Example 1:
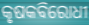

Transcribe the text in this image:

କୃଷକବିରୋଧୀ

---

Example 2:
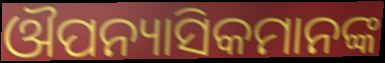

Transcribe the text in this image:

ଔପନ୍ୟାସିକମାନଙ୍କ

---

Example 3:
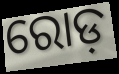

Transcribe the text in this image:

ରୋଡ଼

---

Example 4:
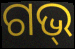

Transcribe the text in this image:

ଗଭ୍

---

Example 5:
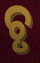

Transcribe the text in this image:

ଚୃ